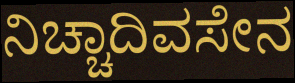
ನಿಚ್ಚಾದಿವಸೇನ